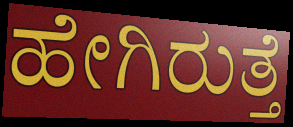
ಹೇಗಿರುತ್ತೆ